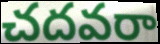
చదవరా